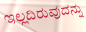
ಇಲ್ಲದಿರುವುದನ್ನು